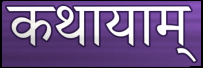
कथायाम्